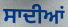
ਸਾਦੀਆਂ